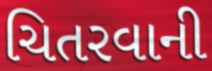
ચિતરવાની